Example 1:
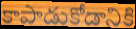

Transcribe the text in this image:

కాపాడుకోడానికి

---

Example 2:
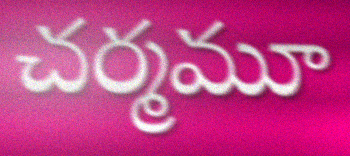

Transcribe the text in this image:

చర్మమూ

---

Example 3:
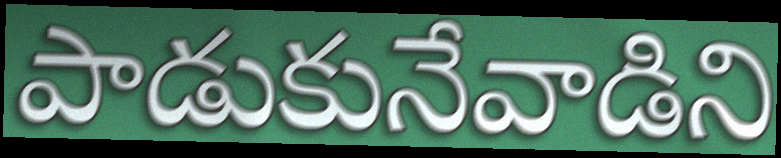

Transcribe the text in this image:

పాడుకునేవాడిని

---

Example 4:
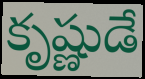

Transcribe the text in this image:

కృష్ణుడే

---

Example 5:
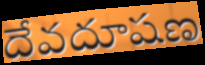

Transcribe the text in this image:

దేవదూషణ